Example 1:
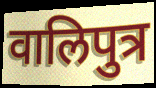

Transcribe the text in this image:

वालिपुत्र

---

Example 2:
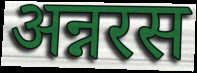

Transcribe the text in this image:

अन्नरस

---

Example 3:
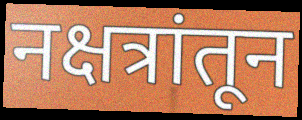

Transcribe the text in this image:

नक्षत्रांतून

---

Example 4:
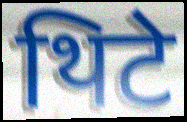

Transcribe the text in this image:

थिटे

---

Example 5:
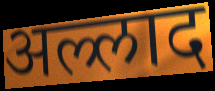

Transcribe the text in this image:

अल्लाद